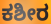
ಕಶೀರ